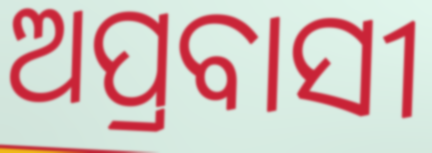
ଅପ୍ରବାସୀ